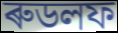
ৰুডলফ